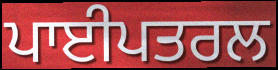
ਪਾਈਪਤਰਲ